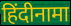
हिंदीनामा